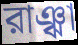
রাঞ্ঝা